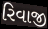
રિવાજી